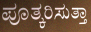
ಪೂತ್ಕರಿಸುತ್ತಾ